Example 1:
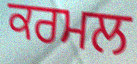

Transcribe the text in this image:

ਕਰਮਲ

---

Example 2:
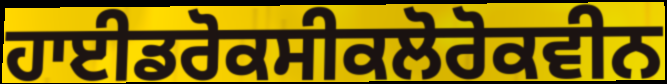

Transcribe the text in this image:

ਹਾਈਡਰੋਕਸੀਕਲੋਰੋਕਵੀਨ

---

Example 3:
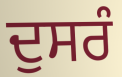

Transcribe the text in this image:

ਦੁਸਰੰ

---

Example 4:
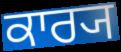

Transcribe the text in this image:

ਕਾਰ੍ਯ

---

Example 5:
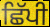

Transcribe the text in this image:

ਛਿੱਪੀ